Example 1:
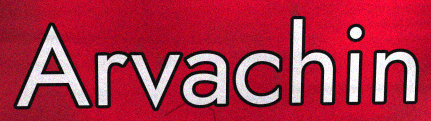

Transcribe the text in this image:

Arvachin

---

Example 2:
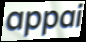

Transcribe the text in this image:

appai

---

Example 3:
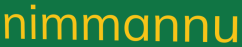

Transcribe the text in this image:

nimmannu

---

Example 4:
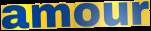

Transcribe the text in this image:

amour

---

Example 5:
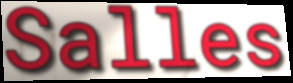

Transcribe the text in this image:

Salles